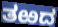
ತಱದ